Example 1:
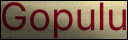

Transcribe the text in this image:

Gopulu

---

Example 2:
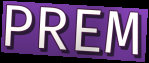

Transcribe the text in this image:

PREM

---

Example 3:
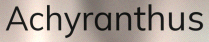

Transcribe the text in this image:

Achyranthus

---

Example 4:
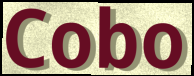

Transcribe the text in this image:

Cobo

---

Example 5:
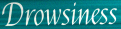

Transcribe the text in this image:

Drowsiness